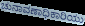
ಚುನಾವಣಾಧಿಕಾರಿಯು